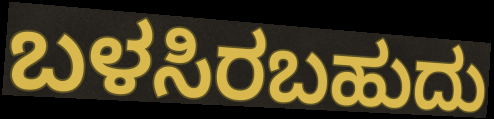
ಬಳಸಿರಬಹುದು